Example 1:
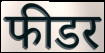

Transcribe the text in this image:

फीडर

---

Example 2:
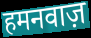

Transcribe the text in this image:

हमनवाज़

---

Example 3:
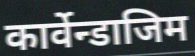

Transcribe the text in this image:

कार्वेन्डाजिम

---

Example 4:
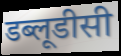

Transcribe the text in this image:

डब्लूडीसी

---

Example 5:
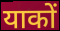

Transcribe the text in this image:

याकों